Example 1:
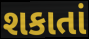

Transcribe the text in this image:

શકાતાં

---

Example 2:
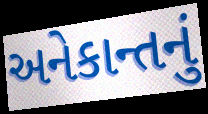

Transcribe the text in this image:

અનેકાન્તનું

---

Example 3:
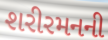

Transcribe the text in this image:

શરીરમનની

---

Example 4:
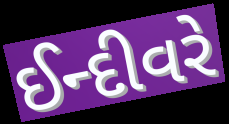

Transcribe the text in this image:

ઈન્દીવરે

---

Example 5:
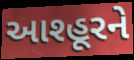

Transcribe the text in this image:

આશ્હૂરને